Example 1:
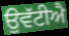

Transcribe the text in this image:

ਉਵੱਟੀਐ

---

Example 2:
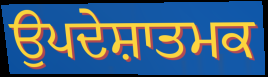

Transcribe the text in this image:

ਉਪਦੇਸ਼ਾਤਮਕ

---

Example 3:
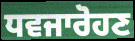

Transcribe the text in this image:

ਧਵਜਾਰੋਹਣ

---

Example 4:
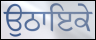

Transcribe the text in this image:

ਉਠਾਇਕੇ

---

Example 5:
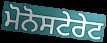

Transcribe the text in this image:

ਮੋਨੋਸਟੇਰੇਟ